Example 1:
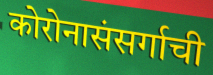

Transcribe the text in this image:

कोरोनासंसर्गाची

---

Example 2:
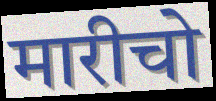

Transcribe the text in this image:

मारीचो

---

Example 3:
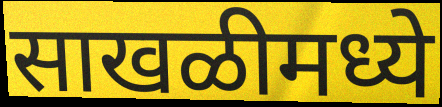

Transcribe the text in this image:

साखळीमध्ये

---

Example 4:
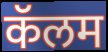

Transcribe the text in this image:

कॅलम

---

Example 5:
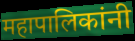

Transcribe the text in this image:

महापालिकांनी